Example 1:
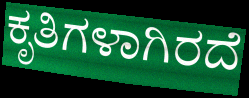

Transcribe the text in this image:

ಕೃತಿಗಳಾಗಿರದೆ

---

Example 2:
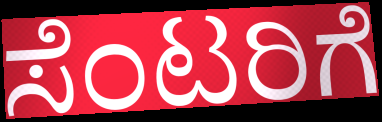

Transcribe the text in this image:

ಸೆಂಟರಿಗೆ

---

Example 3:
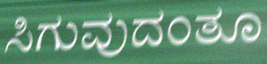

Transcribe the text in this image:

ಸಿಗುವುದಂತೂ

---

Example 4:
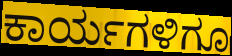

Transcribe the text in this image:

ಕಾರ್ಯಗಳಿಗೂ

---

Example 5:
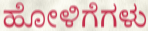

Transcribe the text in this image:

ಹೋಳಿಗೆಗಳು